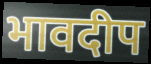
भावदीप